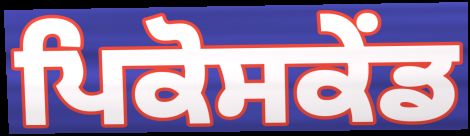
ਪਿਕੋਸਕੇਂਡ